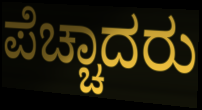
ಪೆಚ್ಚಾದರು